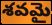
శవమై